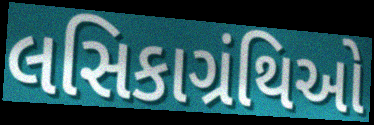
લસિકાગ્રંથિઓ